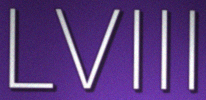
LVIII